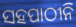
ସହପାଠୀନି